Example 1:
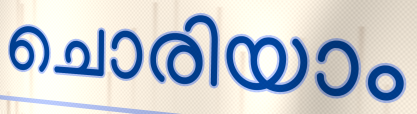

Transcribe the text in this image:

ചൊരിയാം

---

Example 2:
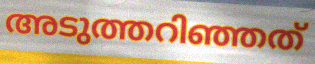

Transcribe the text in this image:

അടുത്തറിഞ്ഞത്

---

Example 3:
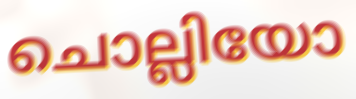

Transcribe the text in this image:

ചൊല്ലിയോ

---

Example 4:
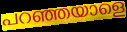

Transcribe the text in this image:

പറഞ്ഞയാളെ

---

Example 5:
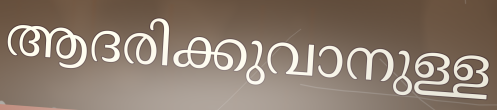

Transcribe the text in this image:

ആദരിക്കുവാനുള്ള